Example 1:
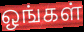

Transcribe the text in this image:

ஒங்கள்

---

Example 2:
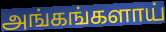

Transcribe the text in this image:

அங்கங்களாய்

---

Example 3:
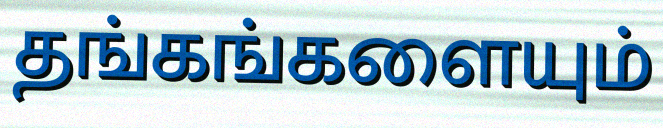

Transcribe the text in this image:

தங்கங்களையும்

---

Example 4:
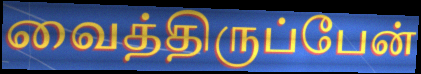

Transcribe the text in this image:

வைத்திருப்பேன்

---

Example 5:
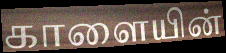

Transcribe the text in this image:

காளையின்